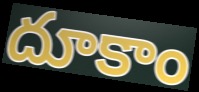
దూకాం